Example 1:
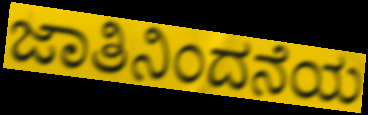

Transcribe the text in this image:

ಜಾತಿನಿಂದನೆಯ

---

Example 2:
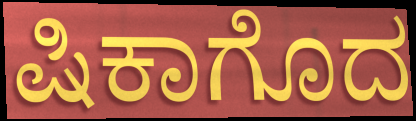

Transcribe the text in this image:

ಷಿಕಾಗೊದ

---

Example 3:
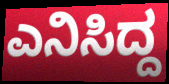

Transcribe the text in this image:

ಎನಿಸಿದ್ದ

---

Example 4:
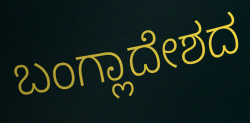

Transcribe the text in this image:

ಬಂಗ್ಲಾದೇಶದ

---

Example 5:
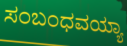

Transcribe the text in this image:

ಸಂಬಂಧವಯ್ಯಾ